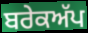
ਬਰੇਕਅੱਪ